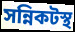
সন্নিকটস্থ